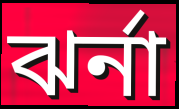
ঝর্না